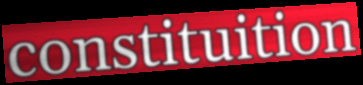
constituition